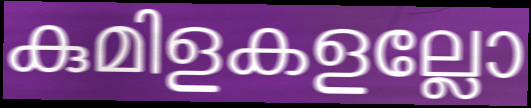
കുമിളകളല്ലോ